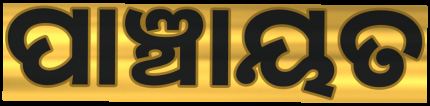
ପାଞ୍ଚାୟତ